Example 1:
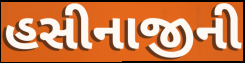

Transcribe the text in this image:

હસીનાજીની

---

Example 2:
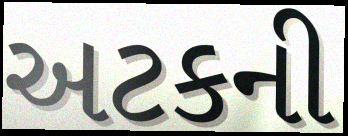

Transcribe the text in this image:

અટકની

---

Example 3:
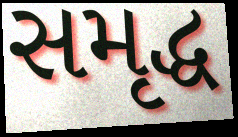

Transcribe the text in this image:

સમૃદ્ધ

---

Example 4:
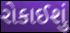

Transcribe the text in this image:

રોકાઈશું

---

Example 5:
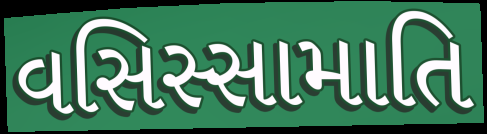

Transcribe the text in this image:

વસિસ્સામાતિ